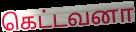
கெட்டவனா